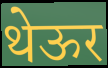
थेऊर